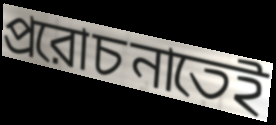
প্ররোচনাতেই